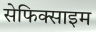
सेफिक्साइम